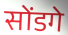
सोंडगे